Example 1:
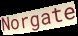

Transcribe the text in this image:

Norgate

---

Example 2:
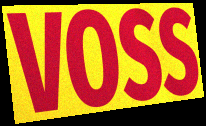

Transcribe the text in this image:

VOSS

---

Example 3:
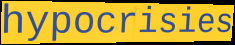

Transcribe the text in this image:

hypocrisies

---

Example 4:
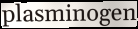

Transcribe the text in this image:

plasminogen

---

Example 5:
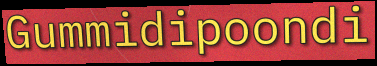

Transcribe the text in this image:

Gummidipoondi